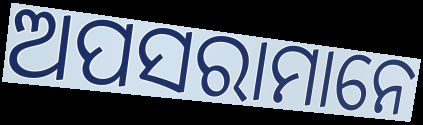
ଅପସରାମାନେ